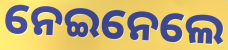
ନେଇନେଲେ